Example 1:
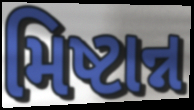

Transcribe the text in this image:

મિષ્ટાન્ન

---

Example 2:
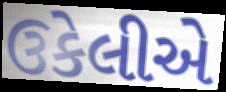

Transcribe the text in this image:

ઉકેલીએ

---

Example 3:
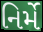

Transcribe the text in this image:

નિર્મે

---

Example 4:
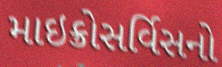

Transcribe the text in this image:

માઇક્રોસર્વિસનો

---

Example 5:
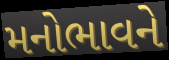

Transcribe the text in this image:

મનોભાવને